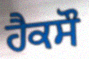
ਹੈਕਸੌ